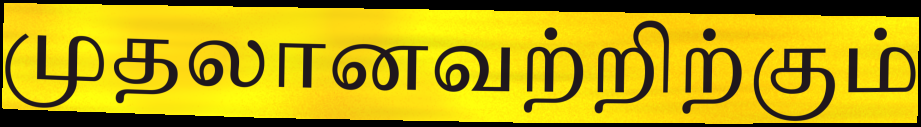
முதலானவற்றிற்கும்